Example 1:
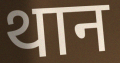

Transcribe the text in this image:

थान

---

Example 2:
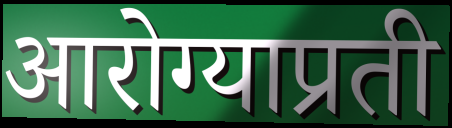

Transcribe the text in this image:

आरोग्याप्रती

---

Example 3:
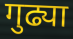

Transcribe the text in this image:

गुढ्या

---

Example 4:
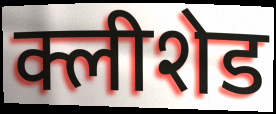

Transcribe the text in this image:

क्लीशेड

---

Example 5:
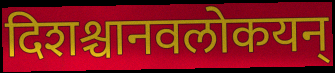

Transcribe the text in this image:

दिशश्चानवलोकयन्